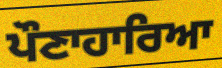
ਪੌਣਾਹਾਰਿਆ